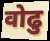
वोढु